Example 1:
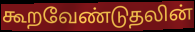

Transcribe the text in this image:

கூறவேண்டுதலின்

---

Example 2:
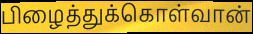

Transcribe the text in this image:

பிழைத்துக்கொள்வான்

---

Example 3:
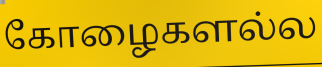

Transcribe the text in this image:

கோழைகளல்ல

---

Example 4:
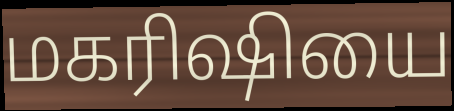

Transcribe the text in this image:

மகரிஷியை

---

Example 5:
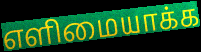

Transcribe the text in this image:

எளிமையாக்க